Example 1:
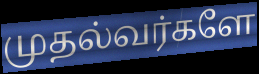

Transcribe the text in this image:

முதல்வர்களே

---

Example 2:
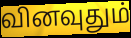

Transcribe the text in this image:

வினவுதும்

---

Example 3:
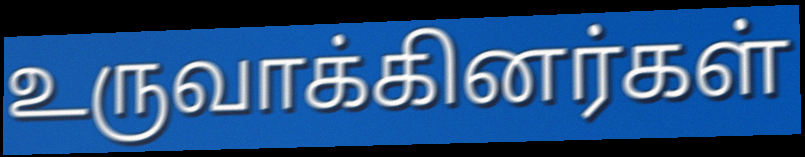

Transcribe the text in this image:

உருவாக்கினர்கள்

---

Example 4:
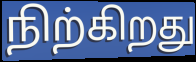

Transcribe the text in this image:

நிற்கிறது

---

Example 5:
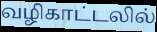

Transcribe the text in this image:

வழிகாட்டலில்